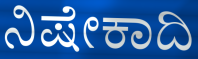
ನಿಷೇಕಾದಿ